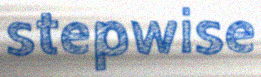
stepwise